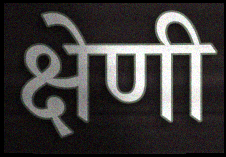
क्षेणी